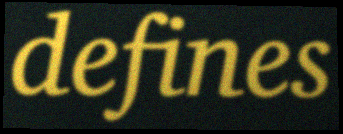
defines